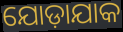
ଯୋଡ଼ାଯାକ